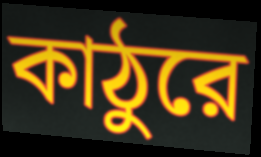
কাঠুরে